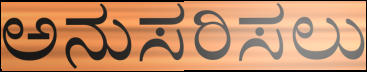
ಅನುಸರಿಸಲು